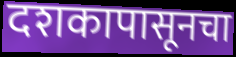
दशकापासूनचा